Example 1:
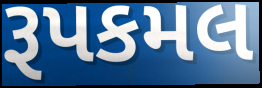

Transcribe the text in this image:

રૂપકમલ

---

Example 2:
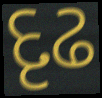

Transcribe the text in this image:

દૃઢ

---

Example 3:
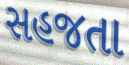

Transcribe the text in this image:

સહજતા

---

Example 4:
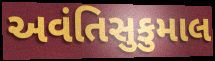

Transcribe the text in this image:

અવંતિસુકુમાલ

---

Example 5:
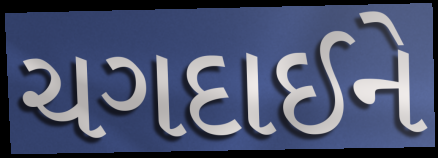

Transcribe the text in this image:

ચગદાઈને